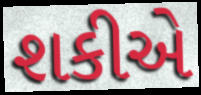
શકીએ